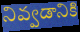
నివ్వడానికి